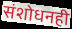
संशोधनही